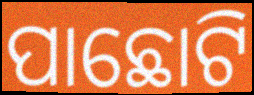
ପାଛୋଟି